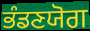
ਭੰਡਣਯੋਗ